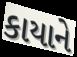
કાયાને